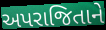
અપરાજિતાને